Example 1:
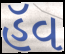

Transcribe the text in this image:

હૅવ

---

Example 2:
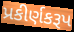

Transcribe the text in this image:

પ્રકીર્ણકરૂપ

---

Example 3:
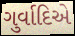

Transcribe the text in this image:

ગુર્વાદિએ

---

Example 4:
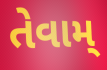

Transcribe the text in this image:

તેવામ્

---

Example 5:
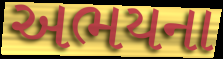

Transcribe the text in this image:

અભયના